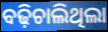
ବଢ଼ିଚାଲିଥିଲା